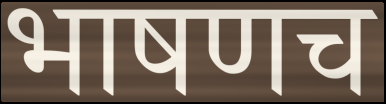
भाषणच